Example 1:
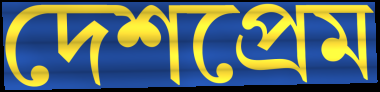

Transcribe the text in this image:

দেশপ্রেম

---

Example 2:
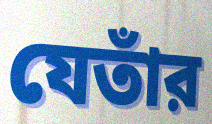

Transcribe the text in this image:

যেতাঁর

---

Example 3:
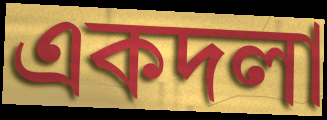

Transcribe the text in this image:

একদলা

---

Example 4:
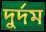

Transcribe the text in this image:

দুর্দম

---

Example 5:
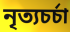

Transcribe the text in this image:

নৃত্যচর্চা